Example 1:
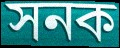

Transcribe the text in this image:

সনক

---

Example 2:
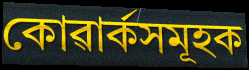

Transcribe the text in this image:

কোৱাৰ্কসমূহক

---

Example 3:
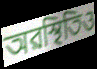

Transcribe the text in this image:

অৱস্থিতিও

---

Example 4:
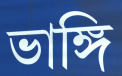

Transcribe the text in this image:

ভাঙ্গি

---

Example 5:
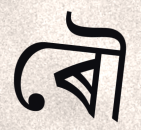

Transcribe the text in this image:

ৰৌ